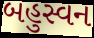
બહુસ્વન